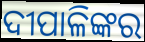
ଦୀପାଳିଙ୍କର